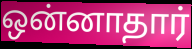
ஒன்னாதார்